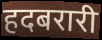
हदबरारी